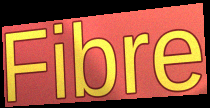
Fibre